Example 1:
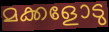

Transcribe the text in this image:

മക്കളോടു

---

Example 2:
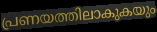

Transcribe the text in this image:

പ്രണയത്തിലാകുകയും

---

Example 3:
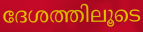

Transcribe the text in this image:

ദേശത്തിലൂടെ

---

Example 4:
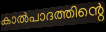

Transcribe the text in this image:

കാൽപാദത്തിന്റെ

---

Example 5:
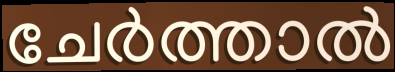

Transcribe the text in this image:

ചേർത്താൽ